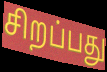
சிறப்பது